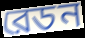
রেডন